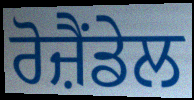
ਰੋਜ਼ੈਂਡੇਲ